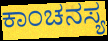
ಕಾಂಚನಸ್ಯ